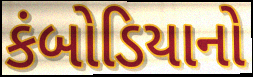
કંબોડિયાનો